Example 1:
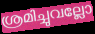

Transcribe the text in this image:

ശ്രമിച്ചുവല്ലോ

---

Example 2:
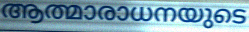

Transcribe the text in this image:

ആത്മാരാധനയുടെ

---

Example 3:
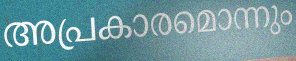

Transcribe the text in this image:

അപ്രകാരമൊന്നും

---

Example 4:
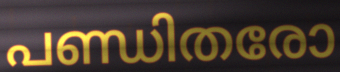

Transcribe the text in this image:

പണ്ഡിതരോ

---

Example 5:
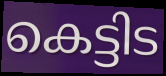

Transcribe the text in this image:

കെട്ടിട